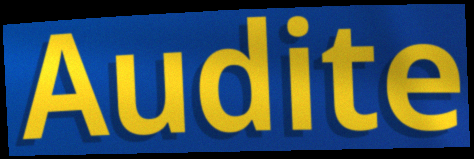
Audite